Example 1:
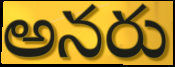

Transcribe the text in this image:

అనరు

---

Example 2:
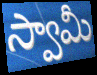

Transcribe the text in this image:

స్వామీ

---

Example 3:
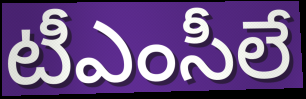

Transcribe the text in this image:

టీఎంసీలే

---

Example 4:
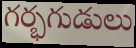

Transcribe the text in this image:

గర్భగుడులు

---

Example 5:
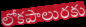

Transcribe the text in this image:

లోకపాలురకు